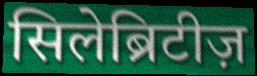
सिलेब्रिटीज़